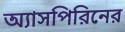
অ্যাসপিরিনের